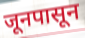
जूनपासून